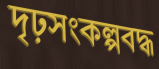
দৃঢ়সংকল্পবদ্ধ